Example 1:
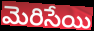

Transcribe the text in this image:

మెరిసేయి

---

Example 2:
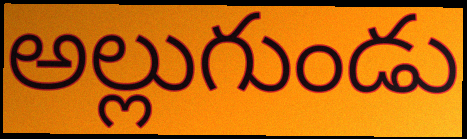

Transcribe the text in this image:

అల్లుగుండు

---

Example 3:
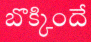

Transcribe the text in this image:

బొక్కిందే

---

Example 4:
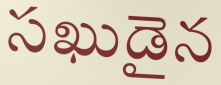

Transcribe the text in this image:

సఖుడైన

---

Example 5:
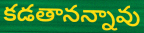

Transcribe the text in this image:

కడతానన్నావు